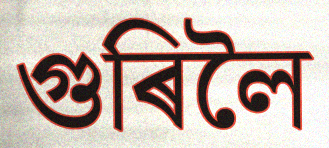
গুৰিলৈ